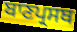
ਬਾਣਪ੍ਰਸਥ